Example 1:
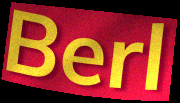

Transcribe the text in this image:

Berl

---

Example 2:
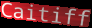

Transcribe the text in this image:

Caitiff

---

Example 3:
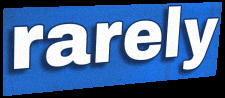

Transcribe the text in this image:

rarely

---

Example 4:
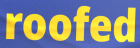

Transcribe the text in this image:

roofed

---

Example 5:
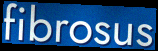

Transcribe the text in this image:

fibrosus